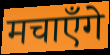
मचाएँगे